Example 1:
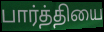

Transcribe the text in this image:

பார்த்தியை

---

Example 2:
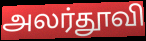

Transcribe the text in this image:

அலர்தூவி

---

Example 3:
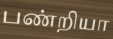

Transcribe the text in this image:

பண்றியா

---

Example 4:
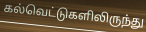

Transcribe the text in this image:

கல்வெட்டுகளிலிருந்து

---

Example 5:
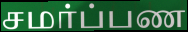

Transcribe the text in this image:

சமர்ப்பண